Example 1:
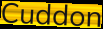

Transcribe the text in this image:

Cuddon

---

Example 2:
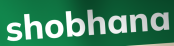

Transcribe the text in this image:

shobhana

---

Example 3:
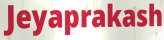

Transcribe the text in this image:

Jeyaprakash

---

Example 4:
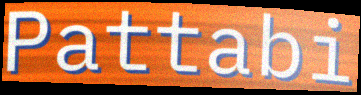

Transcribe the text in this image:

Pattabi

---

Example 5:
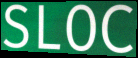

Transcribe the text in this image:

SLOC